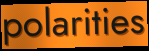
polarities